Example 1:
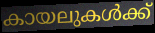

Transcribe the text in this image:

കായലുകൾക്ക്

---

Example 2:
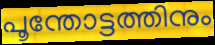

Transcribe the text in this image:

പൂന്തോട്ടത്തിനും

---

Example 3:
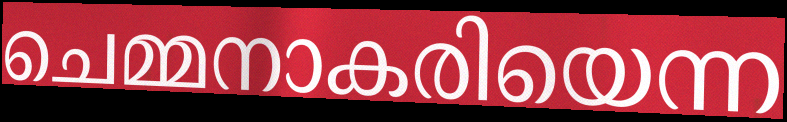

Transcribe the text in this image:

ചെമ്മനാകരിയെന്ന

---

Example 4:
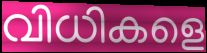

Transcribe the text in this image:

വിധികളെ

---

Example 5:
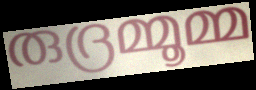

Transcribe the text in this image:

രുദ്രമ്മൂമ്മ